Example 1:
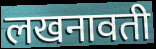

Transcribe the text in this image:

लखनावती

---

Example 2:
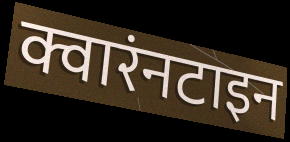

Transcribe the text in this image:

क्वारंनटाइन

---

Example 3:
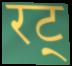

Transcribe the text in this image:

रट्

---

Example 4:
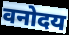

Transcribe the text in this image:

वनोदय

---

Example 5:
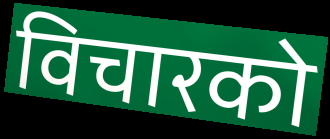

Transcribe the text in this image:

विचारको